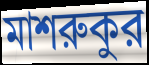
মাশরুকুর